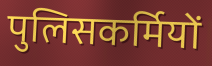
पुलिसकर्मियों